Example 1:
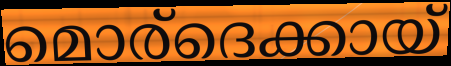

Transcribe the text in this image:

മൊര്ദെക്കായ്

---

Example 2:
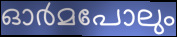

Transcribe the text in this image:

ഓർമപോലും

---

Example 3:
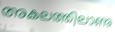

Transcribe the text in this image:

അകലത്തിലാണു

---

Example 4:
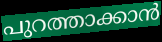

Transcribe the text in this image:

പുറത്താക്കാൻ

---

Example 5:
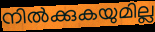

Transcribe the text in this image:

നിൽക്കുകയുമില്ല